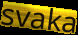
svaka